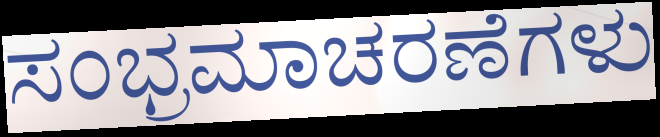
ಸಂಭ್ರಮಾಚರಣೆಗಳು